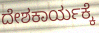
ದೇಶಕಾರ್ಯಕ್ಕೆ